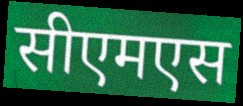
सीएमएस